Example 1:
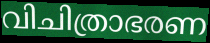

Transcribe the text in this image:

വിചിത്രാഭരണ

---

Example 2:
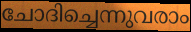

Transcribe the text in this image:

ചോദിച്ചെന്നുവരാം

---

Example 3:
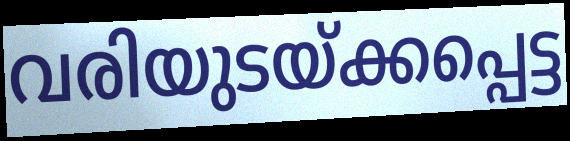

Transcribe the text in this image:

വരിയുടയ്ക്കപ്പെട്ട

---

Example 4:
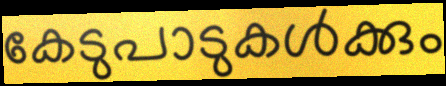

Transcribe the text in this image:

കേടുപാടുകൾക്കും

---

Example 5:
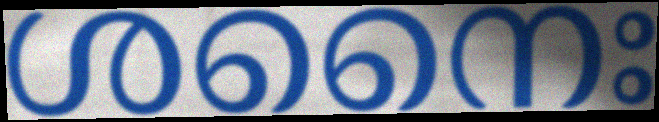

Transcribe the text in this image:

ശനൈഃ